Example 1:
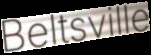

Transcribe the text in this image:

Beltsville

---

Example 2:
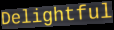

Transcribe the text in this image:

Delightful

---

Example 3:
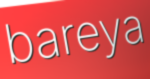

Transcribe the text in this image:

bareya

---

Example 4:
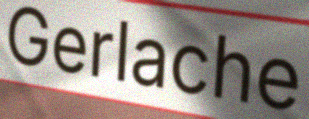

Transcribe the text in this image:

Gerlache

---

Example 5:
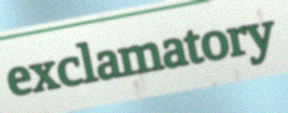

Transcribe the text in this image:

exclamatory